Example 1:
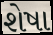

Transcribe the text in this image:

શેષા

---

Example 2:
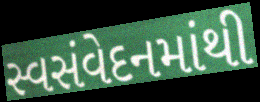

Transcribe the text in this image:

સ્વસંવેદનમાંથી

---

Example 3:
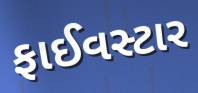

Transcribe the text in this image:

ફાઈવસ્ટાર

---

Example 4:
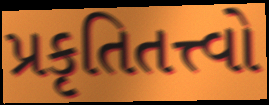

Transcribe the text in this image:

પ્રકૃતિતત્ત્વો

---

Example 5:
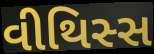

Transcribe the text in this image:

વીથિસ્સ